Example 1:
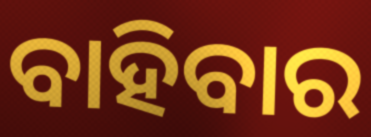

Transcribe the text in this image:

ବାହିବାର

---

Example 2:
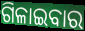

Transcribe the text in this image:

ଗିଳାଇବାର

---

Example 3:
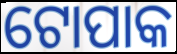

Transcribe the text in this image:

ଟୋପାକ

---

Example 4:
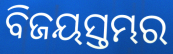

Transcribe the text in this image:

ବିଜୟସ୍ତମ୍ଭର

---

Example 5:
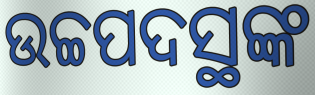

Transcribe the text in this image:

ଉଚ୍ଚପଦସ୍ଥଙ୍କ